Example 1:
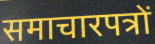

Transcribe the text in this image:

समाचारपत्रों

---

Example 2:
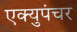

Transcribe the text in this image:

एक्युपंचर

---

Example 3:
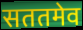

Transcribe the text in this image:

सततमेव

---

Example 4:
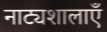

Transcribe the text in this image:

नाट्यशालाएँ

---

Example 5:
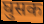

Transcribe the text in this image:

घुसक